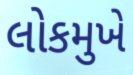
લોકમુખે